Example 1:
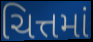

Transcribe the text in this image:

ચિત્તમાં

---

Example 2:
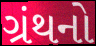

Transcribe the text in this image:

ગ્રંથનો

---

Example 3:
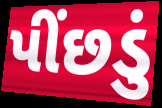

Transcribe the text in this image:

પીંછડું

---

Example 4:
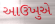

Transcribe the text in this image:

આઉખુએ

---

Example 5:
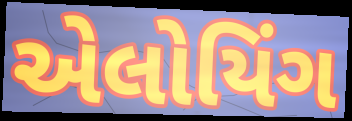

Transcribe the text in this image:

એલોયિંગ